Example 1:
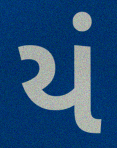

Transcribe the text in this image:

યં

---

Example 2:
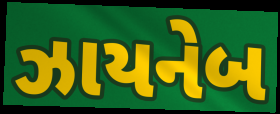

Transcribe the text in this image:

ઝાયનેબ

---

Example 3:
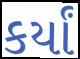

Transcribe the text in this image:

કર્યાં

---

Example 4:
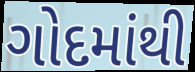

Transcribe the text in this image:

ગોદમાંથી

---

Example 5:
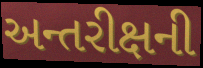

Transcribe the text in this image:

અન્તરીક્ષની